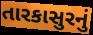
તારકાસુરનું